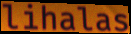
lihalas